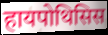
हायपोथिसिस